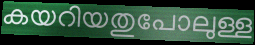
കയറിയതുപോലുള്ള